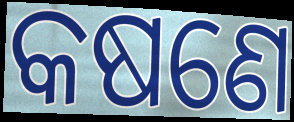
କଷଣେ